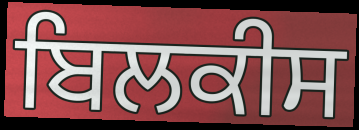
ਬਿਲਕੀਸ